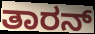
ತಾರನ್